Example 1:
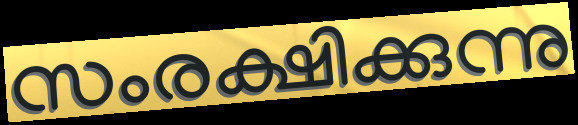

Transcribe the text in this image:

സംരക്ഷിക്കുന്നു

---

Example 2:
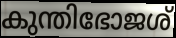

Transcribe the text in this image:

കുന്തിഭോജശ്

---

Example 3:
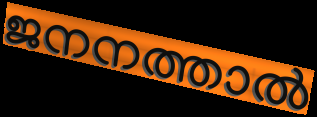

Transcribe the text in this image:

ജനനത്താൽ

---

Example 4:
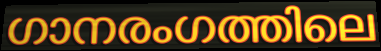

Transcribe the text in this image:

ഗാനരംഗത്തിലെ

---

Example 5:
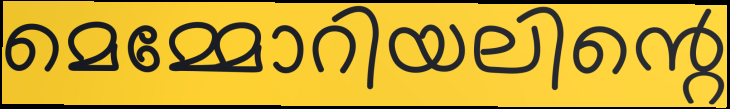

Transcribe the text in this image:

മെമ്മോറിയലിന്റെ